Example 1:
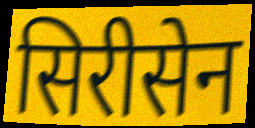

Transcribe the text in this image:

सिरीसेन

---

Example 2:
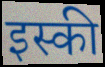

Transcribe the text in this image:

इस्की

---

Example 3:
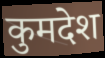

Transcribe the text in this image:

कुमदेश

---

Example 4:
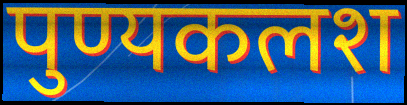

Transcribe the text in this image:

पुण्यकलश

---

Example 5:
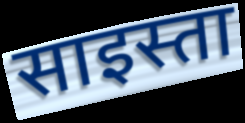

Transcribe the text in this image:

साइस्ता